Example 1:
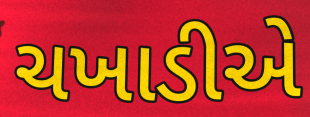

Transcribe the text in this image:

ચખાડીએ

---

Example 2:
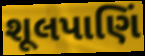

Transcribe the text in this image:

શૂલપાણિં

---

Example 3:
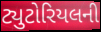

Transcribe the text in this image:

ટ્યુટોરિયલની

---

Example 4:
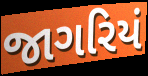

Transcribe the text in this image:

જાગરિયં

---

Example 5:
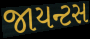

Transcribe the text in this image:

જાયન્ટસ